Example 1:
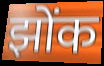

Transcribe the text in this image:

झोंक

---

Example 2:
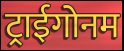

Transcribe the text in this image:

ट्राईगोनम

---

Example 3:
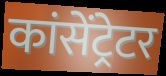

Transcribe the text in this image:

कांसेंट्रेटर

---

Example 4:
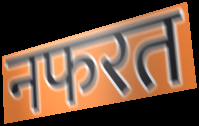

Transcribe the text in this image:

नफरत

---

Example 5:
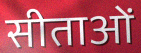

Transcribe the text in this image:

सीताओं